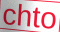
chto